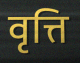
वृत्ति